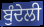
ਬੁੰਦੇਲੀ